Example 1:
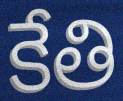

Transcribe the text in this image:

కేతి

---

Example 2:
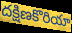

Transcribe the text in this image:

దక్షిణకొరియా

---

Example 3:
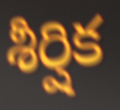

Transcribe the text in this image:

శీర్షిక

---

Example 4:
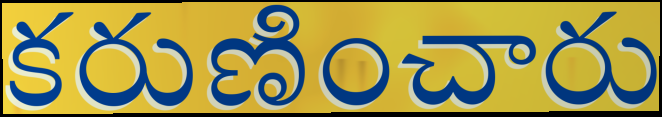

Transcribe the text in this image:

కరుణించారు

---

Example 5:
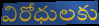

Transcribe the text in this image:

విరోధులకు